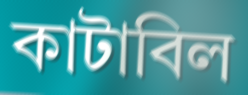
কাটাবিল